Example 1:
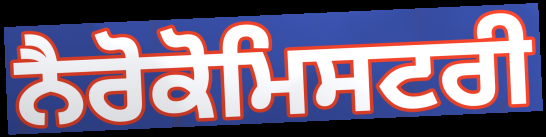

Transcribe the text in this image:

ਨੈਰੋਕੋਮਿਸਟਰੀ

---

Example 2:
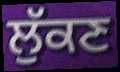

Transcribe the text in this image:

ਲੁੱਕਣ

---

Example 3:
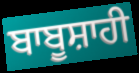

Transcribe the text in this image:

ਬਾਬੂਸ਼ਾਹੀ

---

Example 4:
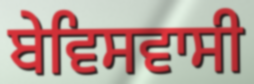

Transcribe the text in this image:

ਬੇਵਿਸਵਾਸੀ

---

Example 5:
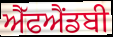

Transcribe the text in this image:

ਐੱਫਐਂਡਬੀ